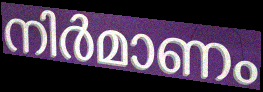
നിർമാണം